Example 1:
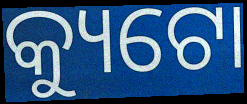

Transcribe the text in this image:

କ୍ୟୁଟୋ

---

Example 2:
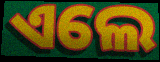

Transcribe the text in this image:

ଏଲେ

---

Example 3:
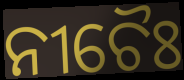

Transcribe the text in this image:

ନୀଚୈଃ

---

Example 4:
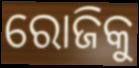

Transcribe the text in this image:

ରୋଜିକୁ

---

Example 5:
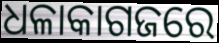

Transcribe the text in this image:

ଧଳାକାଗଜରେ